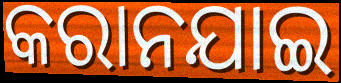
କରାନଯାଇ